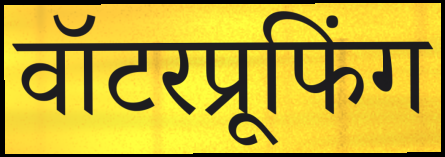
वॉटरप्रूफिंग